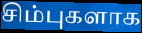
சிம்புகளாக